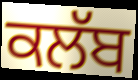
ਕਲੱਬ